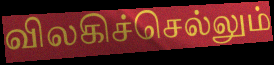
விலகிச்செல்லும்